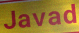
Javad